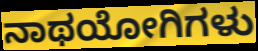
ನಾಥಯೋಗಿಗಳು